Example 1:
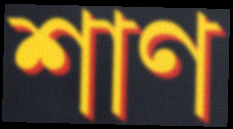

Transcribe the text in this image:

শাণ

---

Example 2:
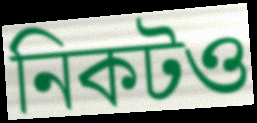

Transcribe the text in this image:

নিকটও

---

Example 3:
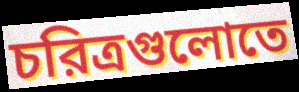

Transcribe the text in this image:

চরিত্রগুলোতে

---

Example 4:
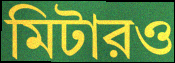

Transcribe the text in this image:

মিটারও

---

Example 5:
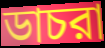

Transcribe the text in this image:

ডাচরা